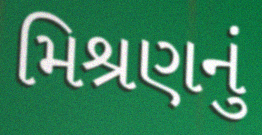
મિશ્રણનું